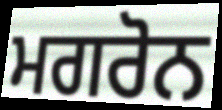
ਮਗਰੋਨ